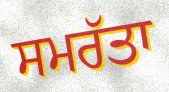
ਸਮਰੱਤਾ